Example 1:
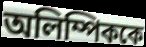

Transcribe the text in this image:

অলিম্পিককে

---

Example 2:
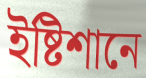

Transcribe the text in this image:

ইষ্টিশানে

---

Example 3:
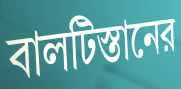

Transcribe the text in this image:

বালটিস্তানের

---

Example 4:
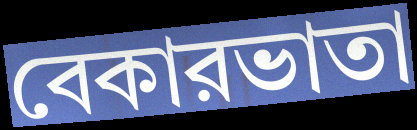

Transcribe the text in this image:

বেকারভাতা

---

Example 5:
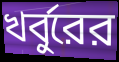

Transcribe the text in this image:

খর্বুরের